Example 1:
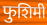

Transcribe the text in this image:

फुशिमी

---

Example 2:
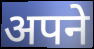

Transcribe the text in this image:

अपने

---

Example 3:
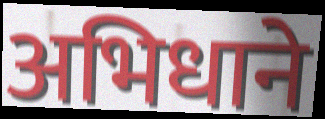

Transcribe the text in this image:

अभिधाने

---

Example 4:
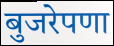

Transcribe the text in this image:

बुजरेपणा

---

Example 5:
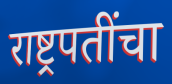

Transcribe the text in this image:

राष्ट्रपतींचा